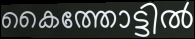
കൈത്തോട്ടിൽ